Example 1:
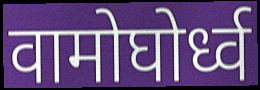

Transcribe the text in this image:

वामोघोर्ध्व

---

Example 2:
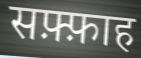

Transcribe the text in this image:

सफ़्फ़ाह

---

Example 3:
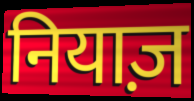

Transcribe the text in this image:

नियाज़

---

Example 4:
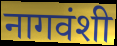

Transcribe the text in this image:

नागवंशी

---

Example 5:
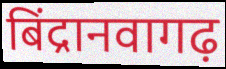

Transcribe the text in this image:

बिंद्रानवागढ़